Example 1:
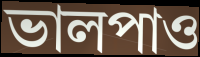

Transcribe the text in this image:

ভালপাও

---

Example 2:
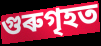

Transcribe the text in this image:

গুৰুগৃহত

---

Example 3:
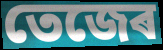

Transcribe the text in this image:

তেজেৰ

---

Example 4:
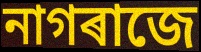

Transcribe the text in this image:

নাগৰাজে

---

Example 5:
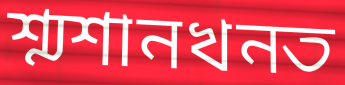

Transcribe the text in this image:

শ্মশানখনত